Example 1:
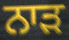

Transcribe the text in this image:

ਨਾੜ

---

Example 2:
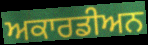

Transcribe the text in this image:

ਅਕਾਰਡੀਅਨ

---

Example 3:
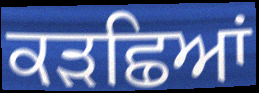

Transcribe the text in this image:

ਕੜਛਿਆਂ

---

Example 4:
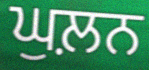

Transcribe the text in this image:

ਘੁਲ਼ਨ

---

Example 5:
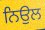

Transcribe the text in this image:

ਨਿਉਲ